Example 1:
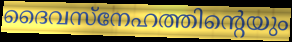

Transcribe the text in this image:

ദൈവസ്നേഹത്തിന്റെയും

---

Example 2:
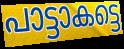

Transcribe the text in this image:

പാട്ടാകട്ടെ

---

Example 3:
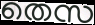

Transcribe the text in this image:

തെസ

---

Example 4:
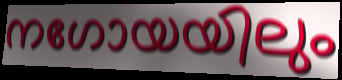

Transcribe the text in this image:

നഗോയയിലും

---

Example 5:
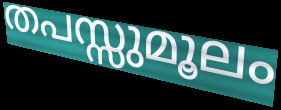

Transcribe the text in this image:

തപസ്സുമൂലം